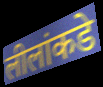
लीलांकडे